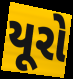
યૂરો